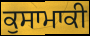
ਕੁਸਾਮਾਕੀ